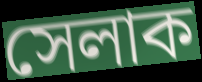
সেলাক